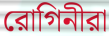
রোগিনীরা